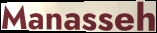
Manasseh